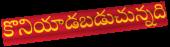
కొనియాడబడుచున్నది